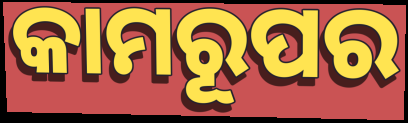
କାମରୂପର